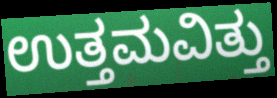
ಉತ್ತಮವಿತ್ತು